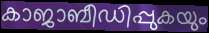
കാജാബീഡിപ്പുകയും